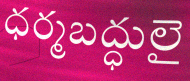
ధర్మబద్ధులై